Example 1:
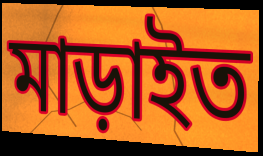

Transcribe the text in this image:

মাড়াইত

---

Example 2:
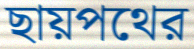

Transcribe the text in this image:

ছায়পথের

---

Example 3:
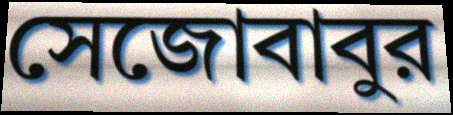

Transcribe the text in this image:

সেজোবাবুর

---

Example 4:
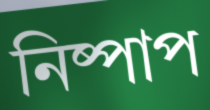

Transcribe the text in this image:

নিষ্পাপ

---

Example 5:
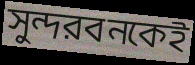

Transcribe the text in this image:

সুন্দরবনকেই